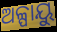
ଅଳ୍ପାୟୁ